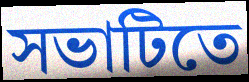
সভাটিতে